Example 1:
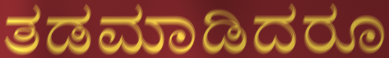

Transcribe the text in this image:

ತಡಮಾಡಿದರೂ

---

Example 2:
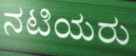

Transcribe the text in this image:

ನಟಿಯರು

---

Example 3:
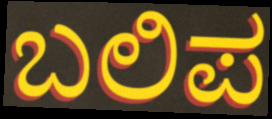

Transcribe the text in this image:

ಬಲಿಪ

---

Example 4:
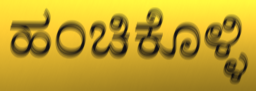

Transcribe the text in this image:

ಹಂಚಿಕೊಳ್ಳಿ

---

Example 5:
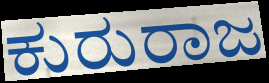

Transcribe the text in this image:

ಕುರುರಾಜ